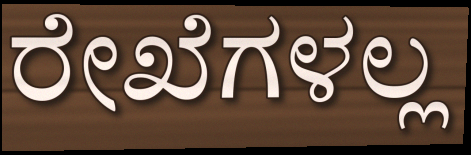
ರೇಖೆಗಳಲ್ಲ